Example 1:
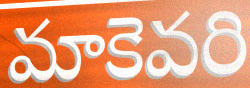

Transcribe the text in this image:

మాకెవరి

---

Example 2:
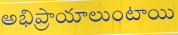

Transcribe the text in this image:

అభిప్రాయాలుంటాయి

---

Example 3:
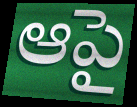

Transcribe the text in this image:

ఆపై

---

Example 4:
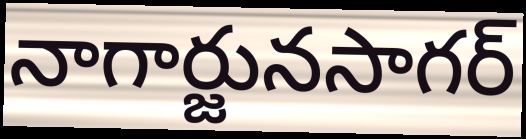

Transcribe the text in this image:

నాగార్జునసాగర్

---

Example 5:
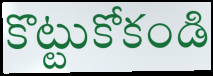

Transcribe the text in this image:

కొట్టుకోకండి